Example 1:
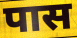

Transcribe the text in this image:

पास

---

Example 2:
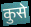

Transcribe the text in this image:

कुसे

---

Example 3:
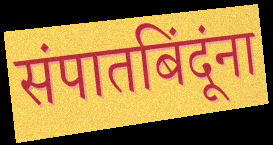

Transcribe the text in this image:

संपातबिंदूंना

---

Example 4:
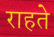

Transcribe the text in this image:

राहते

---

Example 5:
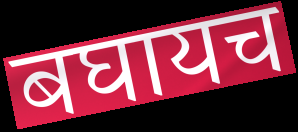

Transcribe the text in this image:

बघायच